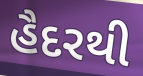
હૈદરથી